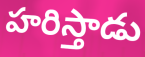
హరిస్తాడు